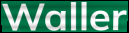
Waller